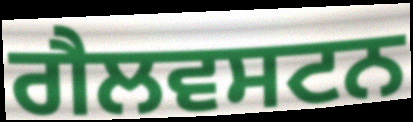
ਗੈਲਵਸਟਨ